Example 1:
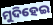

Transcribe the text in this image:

ମୁଦିହେଇ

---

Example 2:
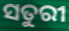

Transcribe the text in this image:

ସତୁରୀ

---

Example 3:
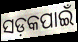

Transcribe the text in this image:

ସଡ଼କପାଇଁ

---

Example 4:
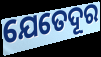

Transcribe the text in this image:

ଯେତେଦୂର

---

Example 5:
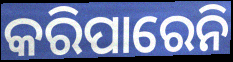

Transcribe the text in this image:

କରିପାରେନି